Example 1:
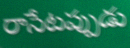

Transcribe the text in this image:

రాసేటప్పుడు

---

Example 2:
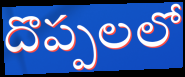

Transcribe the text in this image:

దొప్పలలో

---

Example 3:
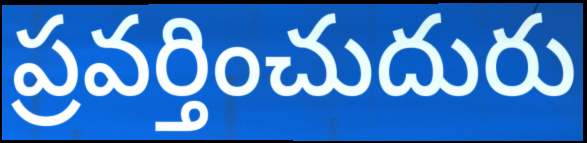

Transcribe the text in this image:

ప్రవర్తించుదురు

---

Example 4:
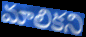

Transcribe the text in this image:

మాలికని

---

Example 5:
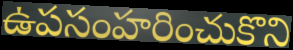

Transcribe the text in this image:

ఉపసంహరించుకొని